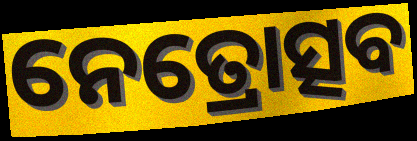
ନେତ୍ରୋତ୍ସବ